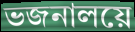
ভজনালয়ে